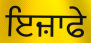
ਇਜ਼ਾਫੇ